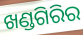
ଖଣ୍ଡଗିରିର